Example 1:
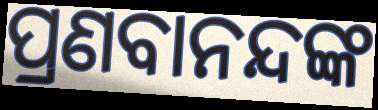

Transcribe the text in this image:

ପ୍ରଣବାନନ୍ଦଙ୍କ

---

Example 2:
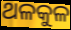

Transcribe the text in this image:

ଥଳକୁଳ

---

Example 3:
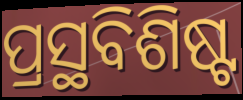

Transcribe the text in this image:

ପ୍ରସ୍ଥବିଶିଷ୍ଟ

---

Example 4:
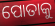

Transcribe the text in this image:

ପୋତାକୁ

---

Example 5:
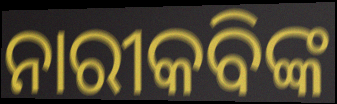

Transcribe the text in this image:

ନାରୀକବିଙ୍କ